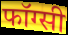
फॉग्सी